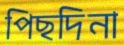
পিছদিনা